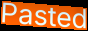
Pasted